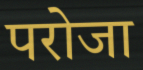
परोजा